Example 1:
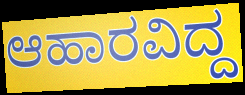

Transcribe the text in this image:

ಆಹಾರವಿದ್ದ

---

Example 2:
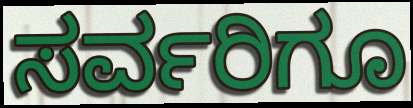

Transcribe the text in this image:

ಸರ್ವರಿಗೂ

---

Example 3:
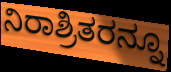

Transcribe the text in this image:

ನಿರಾಶ್ರಿತರನ್ನೂ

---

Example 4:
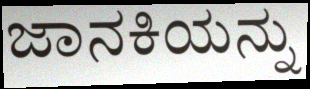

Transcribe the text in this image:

ಜಾನಕಿಯನ್ನು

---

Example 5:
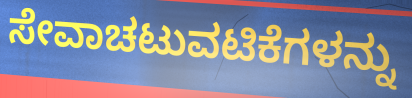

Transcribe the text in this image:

ಸೇವಾಚಟುವಟಿಕೆಗಳನ್ನು